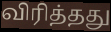
விரித்தது